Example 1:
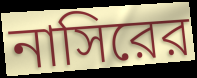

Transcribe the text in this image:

নাসিরের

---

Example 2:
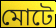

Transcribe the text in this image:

মোটে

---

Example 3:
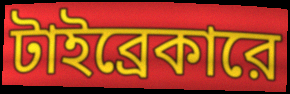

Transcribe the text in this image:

টাইব্রেকারে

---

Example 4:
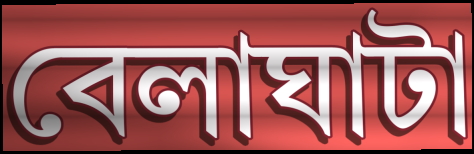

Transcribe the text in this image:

বেলাঘাটা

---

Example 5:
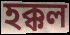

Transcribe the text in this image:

হক্কল